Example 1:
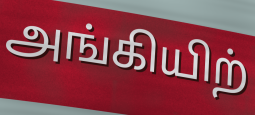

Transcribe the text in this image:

அங்கியிற்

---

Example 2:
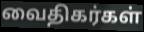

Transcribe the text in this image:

வைதிகர்கள்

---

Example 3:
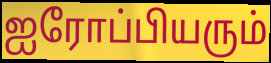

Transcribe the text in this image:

ஐரோப்பியரும்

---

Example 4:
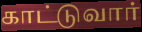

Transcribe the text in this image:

காட்டுவார்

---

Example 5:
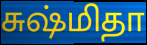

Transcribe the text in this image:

சுஷ்மிதா